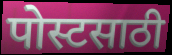
पोस्टसाठी